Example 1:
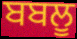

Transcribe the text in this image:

ਬਬਲੂ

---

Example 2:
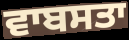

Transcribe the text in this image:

ਵਾਬਸਤਾ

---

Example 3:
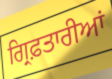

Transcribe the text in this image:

ਗ੍ਰਿਫ਼ਤਾਰੀਆਂ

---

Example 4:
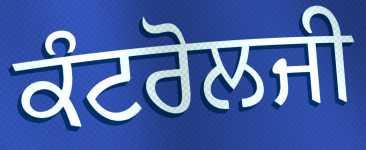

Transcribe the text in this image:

ਕੰਟਰੋਲਜੀ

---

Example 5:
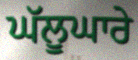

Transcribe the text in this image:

ਘੱਲੂਘਾਰੇ